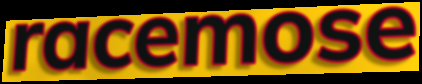
racemose